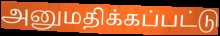
அனுமதிக்கப்பட்டு